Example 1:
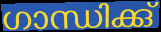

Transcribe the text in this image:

ഗാന്ധിക്കു്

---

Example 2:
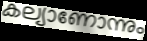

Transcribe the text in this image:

കല്യാണോന്നും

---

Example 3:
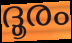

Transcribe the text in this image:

ദൂരം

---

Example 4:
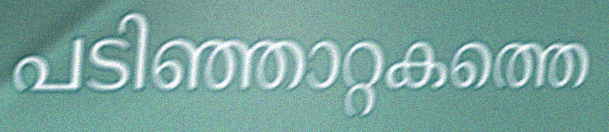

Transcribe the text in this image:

പടിഞ്ഞാറ്റകത്തെ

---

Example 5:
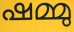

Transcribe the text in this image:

ഷമ്മു